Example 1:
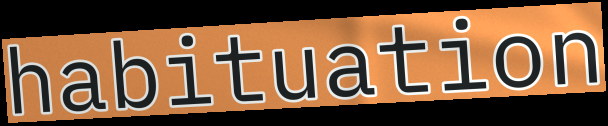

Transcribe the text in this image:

habituation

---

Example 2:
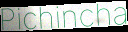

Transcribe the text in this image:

Pichincha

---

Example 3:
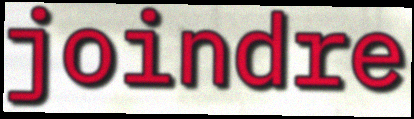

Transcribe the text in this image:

joindre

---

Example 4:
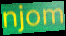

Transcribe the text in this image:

njom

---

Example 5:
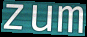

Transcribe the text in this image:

zum